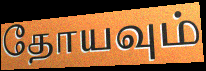
தோயவும்